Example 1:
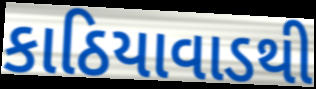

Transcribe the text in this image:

કાઠિયાવાડથી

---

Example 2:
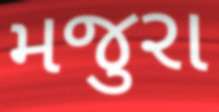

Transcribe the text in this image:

મજુરા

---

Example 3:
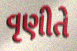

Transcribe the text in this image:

વૃણીતે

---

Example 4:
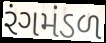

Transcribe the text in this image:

રંગમંડળ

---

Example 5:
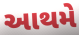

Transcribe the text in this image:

આથમે